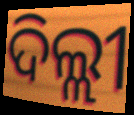
ଦିଲ୍ଲୀ